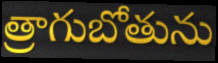
త్రాగుబోతును